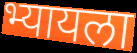
भ्यायला